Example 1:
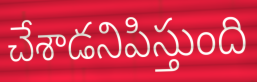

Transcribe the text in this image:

చేశాడనిపిస్తుంది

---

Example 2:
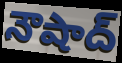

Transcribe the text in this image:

నౌషాద్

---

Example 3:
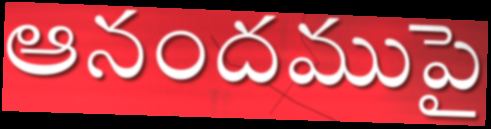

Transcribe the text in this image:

ఆనందముపై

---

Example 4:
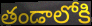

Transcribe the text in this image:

తండాలోకి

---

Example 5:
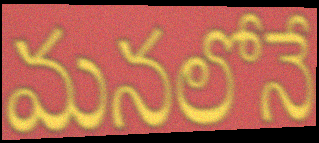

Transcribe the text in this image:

మనలోనే